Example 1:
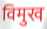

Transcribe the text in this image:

विमुख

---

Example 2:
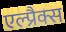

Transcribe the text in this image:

एल्प्रैक्स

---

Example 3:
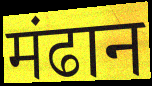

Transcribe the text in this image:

मंढान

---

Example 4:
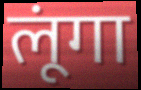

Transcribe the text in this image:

लूंगा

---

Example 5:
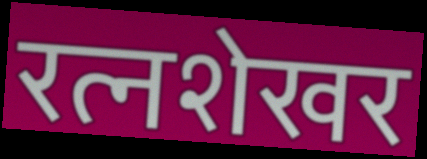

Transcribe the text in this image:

रत्नशेखर